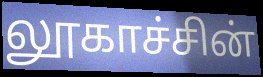
லூகாச்சின்